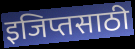
इजिप्तसाठी